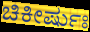
ಚಿಕೀರ್ಷುಃ